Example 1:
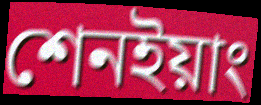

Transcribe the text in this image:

শেনইয়াং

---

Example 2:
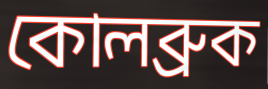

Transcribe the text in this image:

কোলব্রুক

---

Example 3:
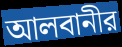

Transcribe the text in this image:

আলবানীর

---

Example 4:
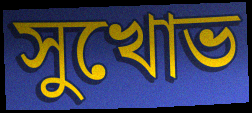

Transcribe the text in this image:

সুখোভ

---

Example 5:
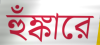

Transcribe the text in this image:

হুঁঙ্কারে